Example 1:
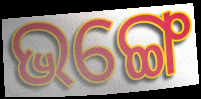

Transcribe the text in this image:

ଭଙ୍ଗେ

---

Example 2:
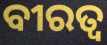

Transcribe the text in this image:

ବୀରତ୍ୱ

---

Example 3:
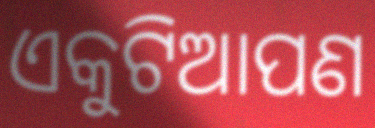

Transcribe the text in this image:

ଏକୁଟିଆପଣ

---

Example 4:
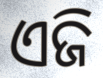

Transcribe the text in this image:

ଏଜି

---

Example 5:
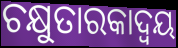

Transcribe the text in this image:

ଚକ୍ଷୁତାରକାଦ୍ଵୟ